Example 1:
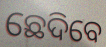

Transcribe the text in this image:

ଛେଦିବେ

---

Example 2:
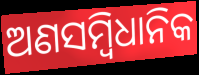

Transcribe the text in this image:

ଅଣସମ୍ବିଧାନିକ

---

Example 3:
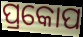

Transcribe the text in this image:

ପ୍ରକୋପ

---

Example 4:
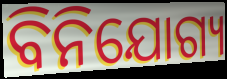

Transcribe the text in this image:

ବିନିଯୋଗ୍ୟ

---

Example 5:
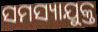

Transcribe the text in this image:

ସମସ୍ୟାଯୁକ୍ତ